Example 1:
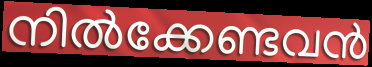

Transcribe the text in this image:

നിൽക്കേണ്ടവൻ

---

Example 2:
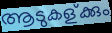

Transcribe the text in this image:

ആടുകള്ക്കും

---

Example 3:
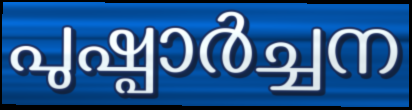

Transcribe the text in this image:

പുഷ്പാർച്ചന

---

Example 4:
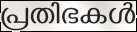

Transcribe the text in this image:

പ്രതിഭകൾ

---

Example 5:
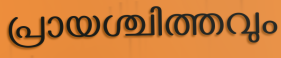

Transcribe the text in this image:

പ്രായശ്ചിത്തവും